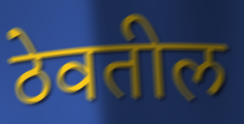
ठेवतील